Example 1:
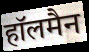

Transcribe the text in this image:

हॉलमैन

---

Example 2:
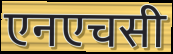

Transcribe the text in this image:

एनएचसी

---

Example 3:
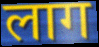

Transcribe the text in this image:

लाग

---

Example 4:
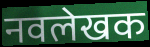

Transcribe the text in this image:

नवलेखक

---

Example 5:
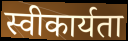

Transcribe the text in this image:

स्वीकार्यता